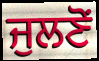
ਜੁਲਣੋਂ